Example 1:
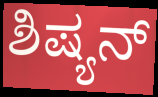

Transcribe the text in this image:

ಶಿಷ್ಯನ್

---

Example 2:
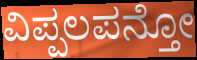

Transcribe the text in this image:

ವಿಪ್ಪಲಪನ್ತೋ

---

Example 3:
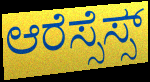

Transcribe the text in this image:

ಆರೆಸ್ಸೆಸ್ಸ್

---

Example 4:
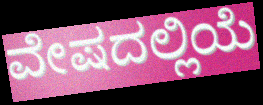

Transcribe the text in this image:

ವೇಷದಲ್ಲಿಯೆ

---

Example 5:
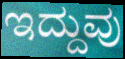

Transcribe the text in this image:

ಇದ್ದುವು